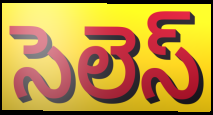
సెలెస్